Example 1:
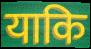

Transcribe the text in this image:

याकि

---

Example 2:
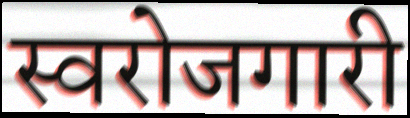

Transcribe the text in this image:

स्वरोजगारी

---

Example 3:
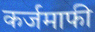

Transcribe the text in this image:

कर्जमाफी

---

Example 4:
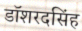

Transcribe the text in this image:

डॉशरदसिंह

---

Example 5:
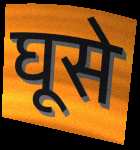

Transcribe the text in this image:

घूसे